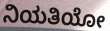
ನಿಯತಿಯೋ